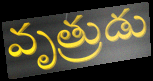
వృత్రుడు